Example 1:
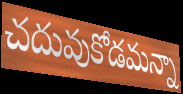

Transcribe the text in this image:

చదువుకోడమన్నా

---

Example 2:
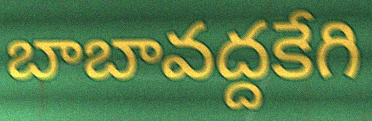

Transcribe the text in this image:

బాబావద్దకేగి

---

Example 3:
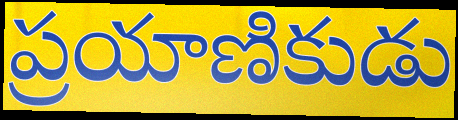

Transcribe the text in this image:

ప్రయాణికుడు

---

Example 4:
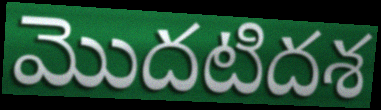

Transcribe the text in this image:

మొదటిదశ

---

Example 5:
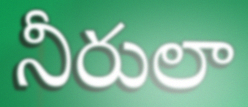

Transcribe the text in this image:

నీరులా